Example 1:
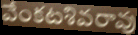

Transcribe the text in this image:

వేంకటశివరావు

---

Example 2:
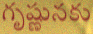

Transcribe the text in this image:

గృష్ణునకు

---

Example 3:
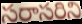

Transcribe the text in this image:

సరాసరిని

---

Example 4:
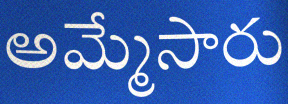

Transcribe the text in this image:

అమ్మేసారు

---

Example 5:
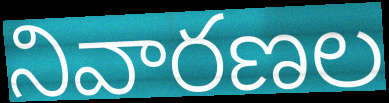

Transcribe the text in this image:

నివారణల